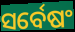
ସର୍ବେଷଂ